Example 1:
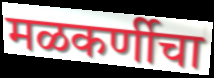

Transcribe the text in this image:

मळकर्णीचा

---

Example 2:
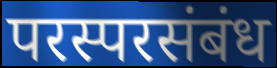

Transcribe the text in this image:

परस्परसंबंध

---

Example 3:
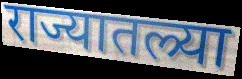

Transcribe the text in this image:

राज्यातल्या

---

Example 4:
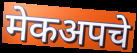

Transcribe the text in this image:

मेकअपचे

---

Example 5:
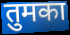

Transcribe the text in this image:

तुमका